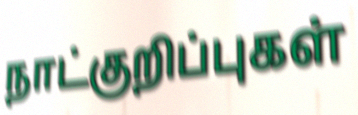
நாட்குறிப்புகள்